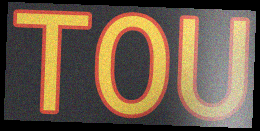
TOU